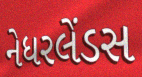
નેધરલેંડસ